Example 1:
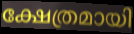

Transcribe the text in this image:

ക്ഷേത്രമായി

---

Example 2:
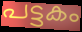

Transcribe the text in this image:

പട്ടകം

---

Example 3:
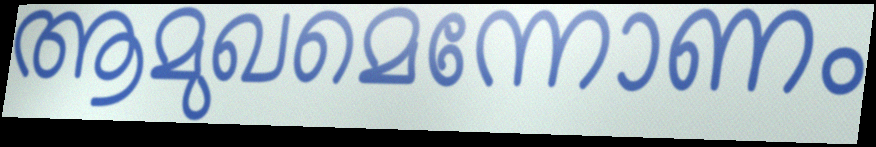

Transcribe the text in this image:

ആമുഖമെന്നോണം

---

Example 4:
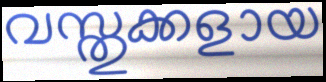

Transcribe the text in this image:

വസ്തുക്കളായ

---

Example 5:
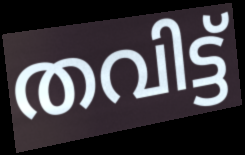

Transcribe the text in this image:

തവിട്ട്